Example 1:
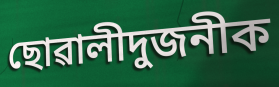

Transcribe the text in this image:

ছোৱালীদুজনীক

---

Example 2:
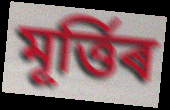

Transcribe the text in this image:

মূৰ্ত্তিৰ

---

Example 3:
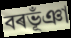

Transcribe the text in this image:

বৰভূঁঞা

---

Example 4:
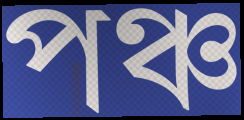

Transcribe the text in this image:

পঞ্চ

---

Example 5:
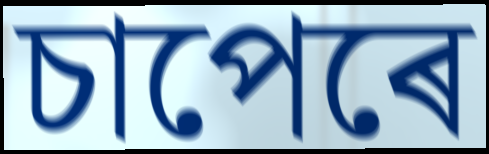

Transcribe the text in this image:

চাপেৰে